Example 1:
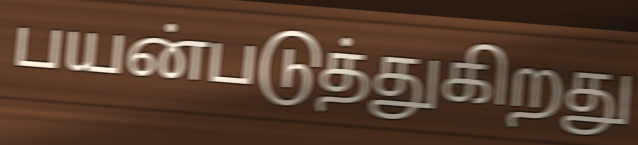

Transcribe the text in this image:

பயன்படுத்துகிறது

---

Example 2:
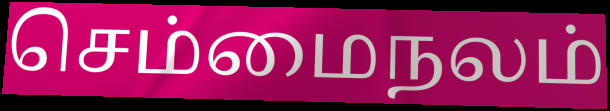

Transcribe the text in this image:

செம்மைநலம்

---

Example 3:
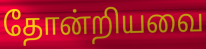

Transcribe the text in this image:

தோன்றியவை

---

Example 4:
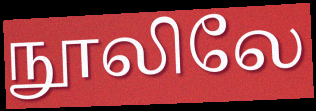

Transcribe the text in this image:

நூலிலே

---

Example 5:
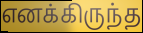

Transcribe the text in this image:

எனக்கிருந்த